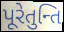
પૂરેતુન્તિ